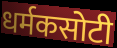
धर्मकसोटी